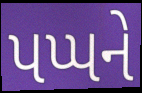
પપ્પને